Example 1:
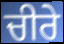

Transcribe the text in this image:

ਚੀਰੇ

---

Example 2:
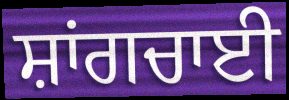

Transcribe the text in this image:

ਸ਼ਾਂਗਚਾਈ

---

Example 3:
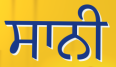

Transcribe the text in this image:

ਸਾਨੀ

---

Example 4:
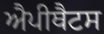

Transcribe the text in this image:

ਐਪੀਥੈਟਸ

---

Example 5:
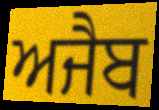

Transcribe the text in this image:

ਅਜੈਬ